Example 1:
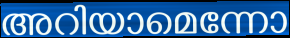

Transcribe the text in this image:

അറിയാമെന്നോ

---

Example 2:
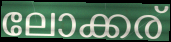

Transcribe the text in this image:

ലോക്കര്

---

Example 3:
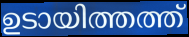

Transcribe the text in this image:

ഉടായിത്തത്ത്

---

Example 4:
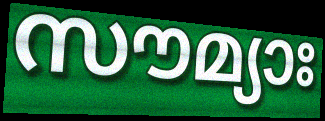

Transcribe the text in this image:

സൗമ്യാഃ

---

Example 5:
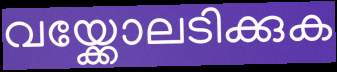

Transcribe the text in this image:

വയ്ക്കോലടിക്കുക